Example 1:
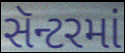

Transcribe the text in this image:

સૅન્ટરમાં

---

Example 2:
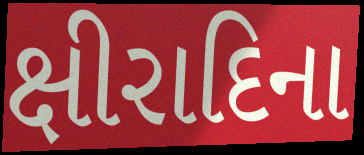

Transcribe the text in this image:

ક્ષીરાદિના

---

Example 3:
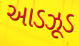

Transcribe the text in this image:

આડઝૂડ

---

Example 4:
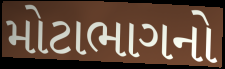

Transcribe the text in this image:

મોટાભાગનો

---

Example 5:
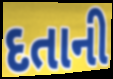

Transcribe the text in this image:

દતાની